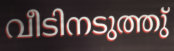
വീടിനടുത്തു്